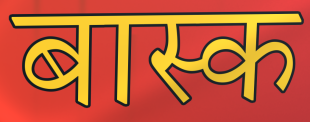
बास्क